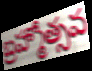
బ్రహ్మోత్సవ